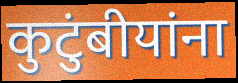
कुटुंबीयांना